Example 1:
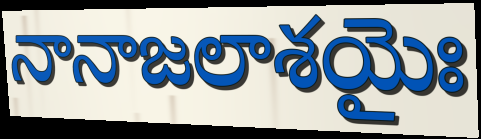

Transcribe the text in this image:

నానాజలాశయైః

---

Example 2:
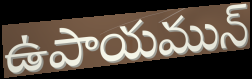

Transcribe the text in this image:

ఉపాయమున్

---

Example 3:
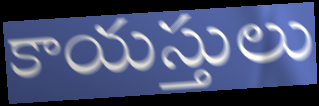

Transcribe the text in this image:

కాయస్తులు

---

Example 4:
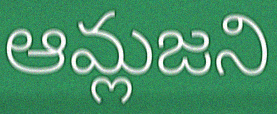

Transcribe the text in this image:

ఆమ్లజని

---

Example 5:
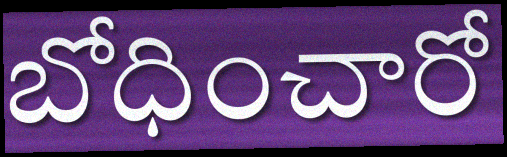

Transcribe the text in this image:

బోధించారో